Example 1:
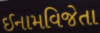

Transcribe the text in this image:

ઈનામવિજેતા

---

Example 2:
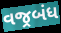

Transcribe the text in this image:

વજ્રબંધ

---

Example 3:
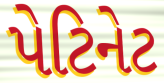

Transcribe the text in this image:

પેટિનેટ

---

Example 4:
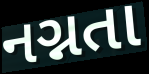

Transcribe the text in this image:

નગ્નતા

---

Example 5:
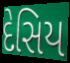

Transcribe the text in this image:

દેસિય